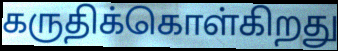
கருதிக்கொள்கிறது